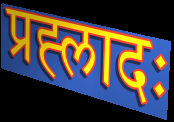
प्रह्लादः